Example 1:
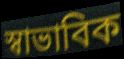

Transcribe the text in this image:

স্বাভাবিক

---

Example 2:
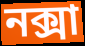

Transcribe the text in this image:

নক্সা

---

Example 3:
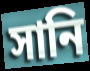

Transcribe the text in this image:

সানি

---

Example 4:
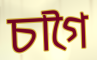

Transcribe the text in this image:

চাগৈ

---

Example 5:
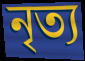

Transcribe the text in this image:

নৃত্য